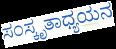
ಸಂಸ್ಕೃತಾಧ್ಯಯನ